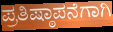
ಪ್ರತಿಷ್ಠಾಪನೆಗಾಗಿ